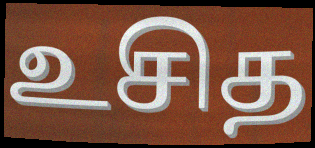
உசித